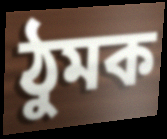
ঠুমক